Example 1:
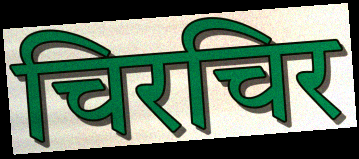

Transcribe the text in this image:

चिरचिर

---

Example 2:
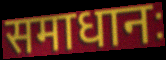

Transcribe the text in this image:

समाधानः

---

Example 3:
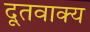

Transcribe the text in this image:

दूतवाक्य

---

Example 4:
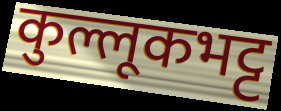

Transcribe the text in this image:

कुल्लूकभट्ट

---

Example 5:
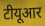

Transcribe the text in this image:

टीयूआर